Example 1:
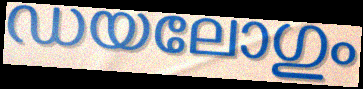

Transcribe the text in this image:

ഡയലോഗും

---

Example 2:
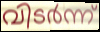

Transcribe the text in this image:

വിടർന്ന്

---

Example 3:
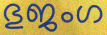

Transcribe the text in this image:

ഭുജംഗ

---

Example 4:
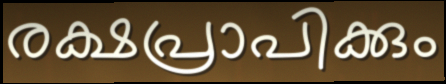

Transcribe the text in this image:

രക്ഷപ്രാപിക്കും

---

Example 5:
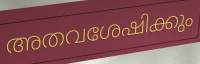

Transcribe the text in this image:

അതവശേഷിക്കും